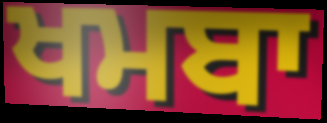
ਖਮਬਾ